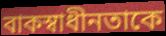
বাকস্বাধীনতাকে